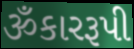
ૐકારરૂપી